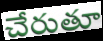
చేరుతూ